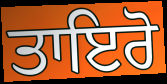
ਤਾਇਰੋ